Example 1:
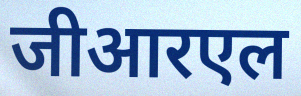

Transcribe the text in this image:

जीआरएल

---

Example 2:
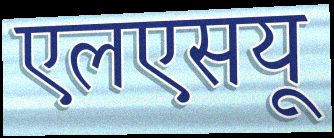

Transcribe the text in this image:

एलएसयू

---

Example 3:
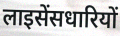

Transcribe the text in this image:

लाइसेंसधारियों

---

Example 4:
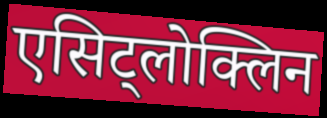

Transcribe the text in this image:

एसिट्लोक्लिन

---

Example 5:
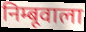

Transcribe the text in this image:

निम्बूवाला